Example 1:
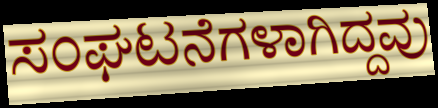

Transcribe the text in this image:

ಸಂಘಟನೆಗಳಾಗಿದ್ದವು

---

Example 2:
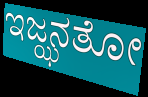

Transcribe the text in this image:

ಇಜ್ಝನತೋ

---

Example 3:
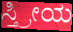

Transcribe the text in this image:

ಸ್ತ್ರೀಯ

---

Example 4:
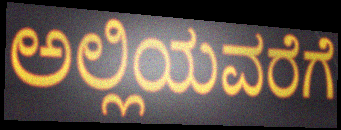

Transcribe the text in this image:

ಅಲ್ಲಿಯವರೆಗೆ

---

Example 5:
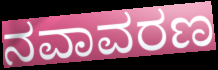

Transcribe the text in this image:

ನವಾವರಣ